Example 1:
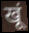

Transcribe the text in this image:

खूं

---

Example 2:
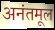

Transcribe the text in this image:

अनंतमूल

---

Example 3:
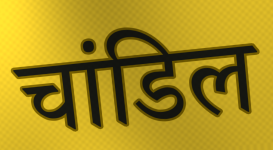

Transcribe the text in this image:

चांडिल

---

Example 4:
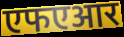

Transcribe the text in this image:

एफएआर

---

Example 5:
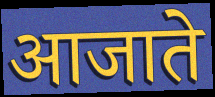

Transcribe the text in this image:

आजाते